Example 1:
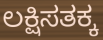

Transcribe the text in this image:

ಲಕ್ಷಿಸತಕ್ಕ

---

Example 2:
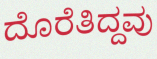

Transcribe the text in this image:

ದೊರೆತಿದ್ದವು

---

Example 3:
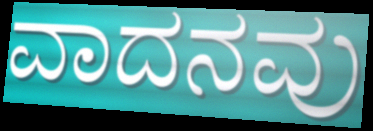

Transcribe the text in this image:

ವಾದನವು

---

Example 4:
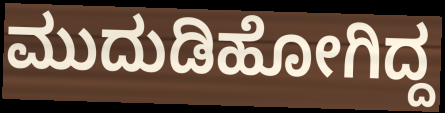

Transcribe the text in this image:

ಮುದುಡಿಹೋಗಿದ್ದ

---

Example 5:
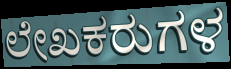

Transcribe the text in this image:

ಲೇಖಕರುಗಳ